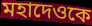
মহাদেওকে